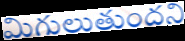
మిగులుతుందని